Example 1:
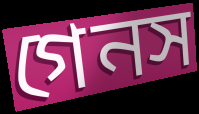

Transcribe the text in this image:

গেনস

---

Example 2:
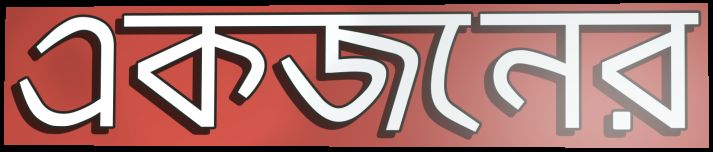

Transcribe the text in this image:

একজনের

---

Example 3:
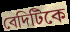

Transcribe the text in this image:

বেদিটিকে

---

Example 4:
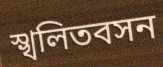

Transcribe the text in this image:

স্খলিতবসন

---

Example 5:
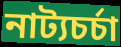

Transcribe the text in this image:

নাট্যচর্চা